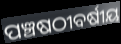
ପଞ୍ଚଷଠୀବର୍ଷୀୟ